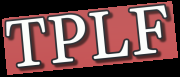
TPLF